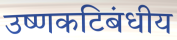
उष्णकटिबंधीय